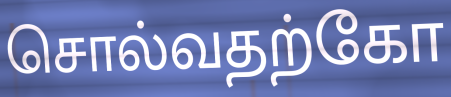
சொல்வதற்கோ